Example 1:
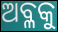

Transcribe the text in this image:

ଅବ୍ଳକୁ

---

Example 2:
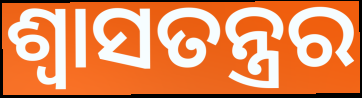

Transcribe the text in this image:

ଶ୍ଵାସତନ୍ତ୍ରର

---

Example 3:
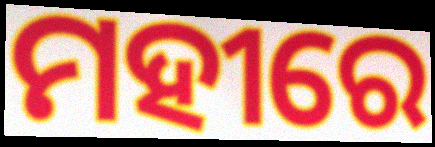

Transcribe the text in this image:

ମହୀରେ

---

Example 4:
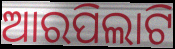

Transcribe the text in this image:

ଆରପିଲାଟି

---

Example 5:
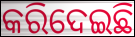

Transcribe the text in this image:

କରିଦେଇଛି